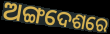
ଅଙ୍ଗଦେଶରେ